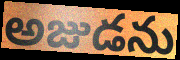
అజుడను